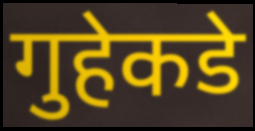
गुहेकडे